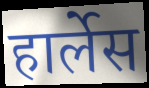
हार्लेस